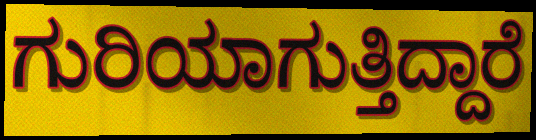
ಗುರಿಯಾಗುತ್ತಿದ್ದಾರೆ